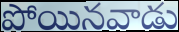
పోయినవాడు